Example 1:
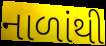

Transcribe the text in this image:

નાળાંથી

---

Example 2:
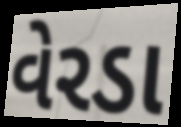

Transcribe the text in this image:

વેરડા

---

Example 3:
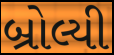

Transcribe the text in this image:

બ્રોલ્યી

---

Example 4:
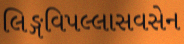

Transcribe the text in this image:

લિઙ્ગવિપલ્લાસવસેન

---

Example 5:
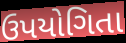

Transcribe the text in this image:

ઉપયોગિતા